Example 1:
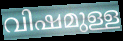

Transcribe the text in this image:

വിഷമുള്ള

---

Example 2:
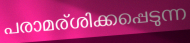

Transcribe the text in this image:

പരാമര്ശിക്കപ്പെടുന്ന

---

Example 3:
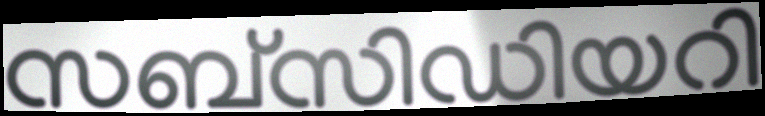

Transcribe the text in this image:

സബ്സിഡിയറി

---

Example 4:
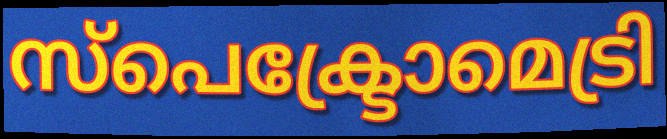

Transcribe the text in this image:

സ്പെക്ട്രോമെട്രി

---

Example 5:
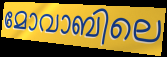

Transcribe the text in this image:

മോവാബിലെ